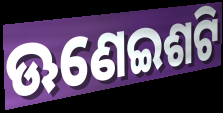
ଊଣେଇଶଟି